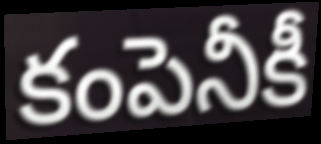
కంపెనీకీ